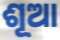
ଶୂଆ